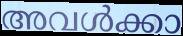
അവൾക്കാ